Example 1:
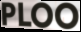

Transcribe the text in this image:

PLOO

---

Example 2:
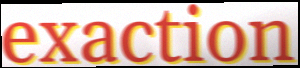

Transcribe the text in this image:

exaction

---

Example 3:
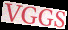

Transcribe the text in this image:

VGGS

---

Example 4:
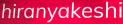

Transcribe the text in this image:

hiranyakeshi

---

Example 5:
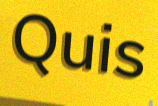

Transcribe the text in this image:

Quis